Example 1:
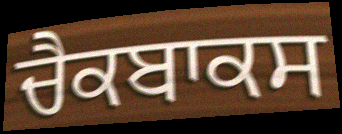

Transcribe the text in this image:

ਚੈਕਬਾਕਸ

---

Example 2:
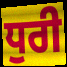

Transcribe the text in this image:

ਧੁਰੀ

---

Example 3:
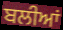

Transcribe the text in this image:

ਬਲੀਆਂ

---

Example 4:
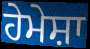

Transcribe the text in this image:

ਹੇਮੇਸ਼ਾ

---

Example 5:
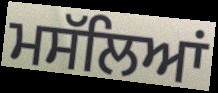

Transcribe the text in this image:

ਮਸੱਲਿਆਂ